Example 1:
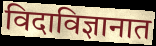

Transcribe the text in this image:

विदाविज्ञानात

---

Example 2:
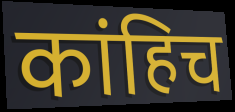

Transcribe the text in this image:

कांहिच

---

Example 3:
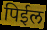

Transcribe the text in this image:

पिईल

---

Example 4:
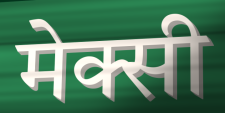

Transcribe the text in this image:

मेक्सी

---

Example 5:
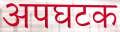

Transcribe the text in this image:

अपघटक